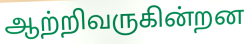
ஆற்றிவருகின்றன